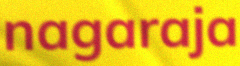
nagaraja